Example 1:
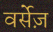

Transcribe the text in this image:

वर्सेज़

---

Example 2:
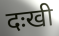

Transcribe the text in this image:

दःखी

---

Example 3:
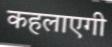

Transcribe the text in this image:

कहलाएगी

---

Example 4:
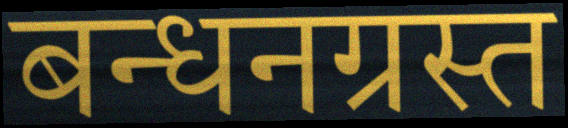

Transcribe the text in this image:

बन्धनग्रस्त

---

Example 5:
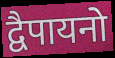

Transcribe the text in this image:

द्वैपायनो